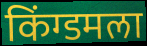
किंग्डमला